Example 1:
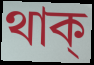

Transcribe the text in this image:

থাক্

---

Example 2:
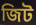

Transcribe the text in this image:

জিট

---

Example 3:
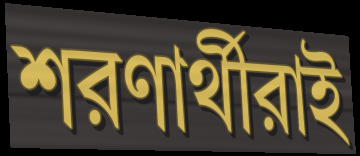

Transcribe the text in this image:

শরণার্থীরাই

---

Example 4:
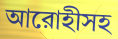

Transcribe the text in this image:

আরোহীসহ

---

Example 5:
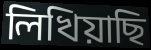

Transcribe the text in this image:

লিখিয়াছি